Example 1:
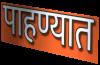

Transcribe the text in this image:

पाहण्यात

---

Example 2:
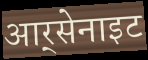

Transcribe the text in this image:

आर्सेनाइट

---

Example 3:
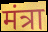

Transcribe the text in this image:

मंत्रा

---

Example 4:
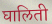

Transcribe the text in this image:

घालिती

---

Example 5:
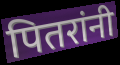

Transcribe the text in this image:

पितरांनी